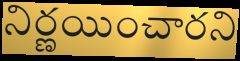
నిర్ణయించారని